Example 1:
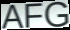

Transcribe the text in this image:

AFG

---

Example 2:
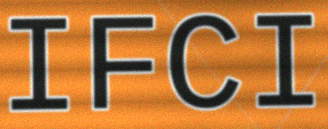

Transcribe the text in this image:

IFCI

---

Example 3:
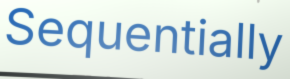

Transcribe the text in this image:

Sequentially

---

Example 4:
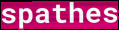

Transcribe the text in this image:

spathes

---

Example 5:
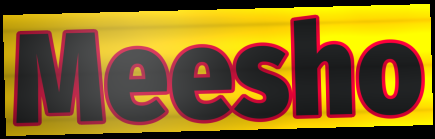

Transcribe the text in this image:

Meesho